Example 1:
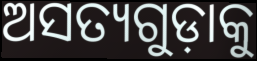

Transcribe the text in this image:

ଅସତ୍ୟଗୁଡ଼ାକୁ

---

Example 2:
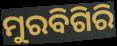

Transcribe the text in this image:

ମୁରବିଗିରି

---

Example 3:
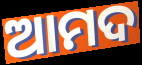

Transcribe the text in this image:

ଆମଦ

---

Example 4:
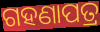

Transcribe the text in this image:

ଗହଣାପତ୍ର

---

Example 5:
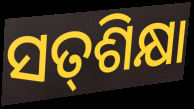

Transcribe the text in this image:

ସତ୍‌ଶିକ୍ଷା